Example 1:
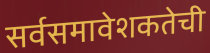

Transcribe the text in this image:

सर्वसमावेशकतेची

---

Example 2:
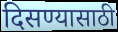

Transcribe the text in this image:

दिसण्यासाठी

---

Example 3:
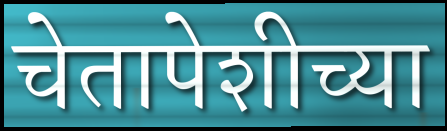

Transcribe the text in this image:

चेतापेशीच्या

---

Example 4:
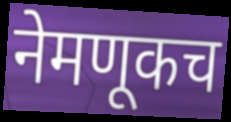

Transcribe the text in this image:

नेमणूकच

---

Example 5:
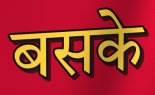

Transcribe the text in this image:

बसके